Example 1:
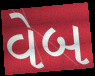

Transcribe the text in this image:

વેબ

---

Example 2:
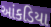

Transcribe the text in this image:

આંકડિયા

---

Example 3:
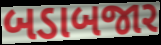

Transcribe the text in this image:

બડાબજાર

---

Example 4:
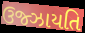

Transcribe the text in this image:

ઉજ્ઝાયતિ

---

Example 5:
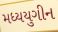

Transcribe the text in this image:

મધ્યયુગીન